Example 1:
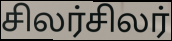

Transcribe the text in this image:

சிலர்சிலர்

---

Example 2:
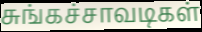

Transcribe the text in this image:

சுங்கச்சாவடிகள்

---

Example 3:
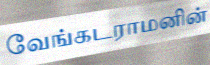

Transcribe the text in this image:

வேங்கடராமனின்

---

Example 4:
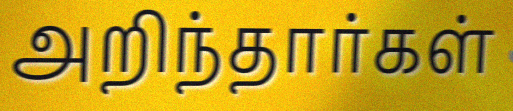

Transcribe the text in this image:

அறிந்தார்கள்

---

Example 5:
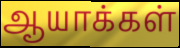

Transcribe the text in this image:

ஆயாக்கள்